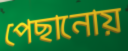
পেছানোয়